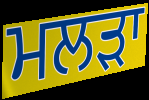
ਮਲੜਾ